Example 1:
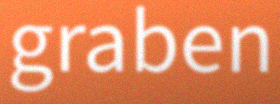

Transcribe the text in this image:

graben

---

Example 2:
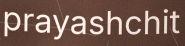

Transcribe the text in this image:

prayashchit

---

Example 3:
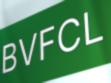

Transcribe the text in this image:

BVFCL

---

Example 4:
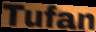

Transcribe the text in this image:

Tufan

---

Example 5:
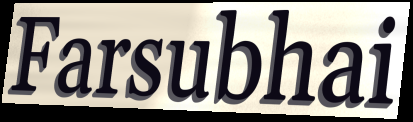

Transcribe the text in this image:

Farsubhai